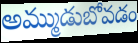
అమ్ముడుబోవడం